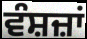
ਵੰਸ਼ਜ਼ਾਂ